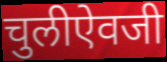
चुलीऐवजी